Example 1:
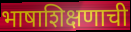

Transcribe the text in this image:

भाषाशिक्षणाची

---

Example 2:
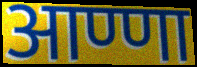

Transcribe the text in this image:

आण्णा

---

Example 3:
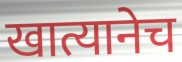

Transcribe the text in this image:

खात्यानेच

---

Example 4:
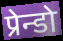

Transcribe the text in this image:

प्रेन्डो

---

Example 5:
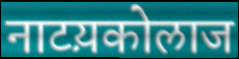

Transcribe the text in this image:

नाटय़कोलाज